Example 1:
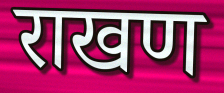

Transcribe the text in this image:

राखण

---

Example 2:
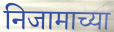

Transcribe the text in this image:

निजामाच्या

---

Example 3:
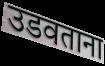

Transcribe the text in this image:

उडवताना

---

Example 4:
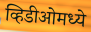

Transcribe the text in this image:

व्हिडीओमध्ये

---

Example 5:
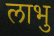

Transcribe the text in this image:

लाभु